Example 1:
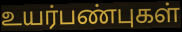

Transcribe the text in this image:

உயர்பண்புகள்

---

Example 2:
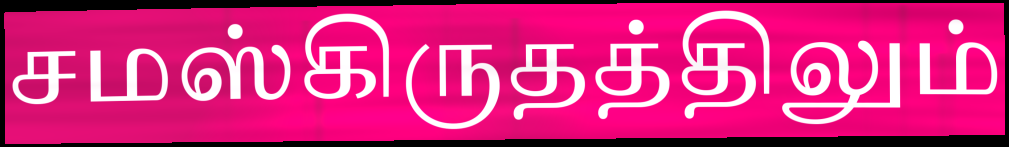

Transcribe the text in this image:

சமஸ்கிருதத்திலும்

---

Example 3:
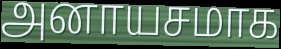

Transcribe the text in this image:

அனாயசமாக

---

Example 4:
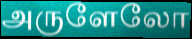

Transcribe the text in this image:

அருளேலோ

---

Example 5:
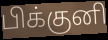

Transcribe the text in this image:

பிக்குனி